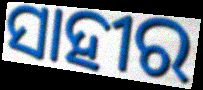
ସାହୀର